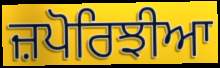
ਜ਼ਪੋਰਿਝੀਆ